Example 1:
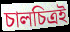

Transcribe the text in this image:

চালচিত্রই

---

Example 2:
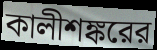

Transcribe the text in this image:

কালীশঙ্করের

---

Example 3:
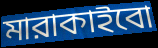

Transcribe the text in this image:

মারাকাইবো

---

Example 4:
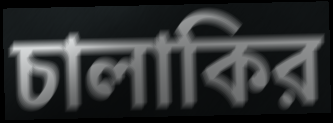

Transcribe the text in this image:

চালাকির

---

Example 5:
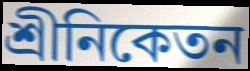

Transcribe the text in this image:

শ্রীনিকেতন